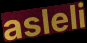
asleli